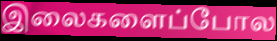
இலைகளைப்போல